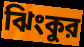
ঝিংকুর